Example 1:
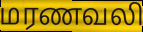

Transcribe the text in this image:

மரணவலி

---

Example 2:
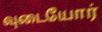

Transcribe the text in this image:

வுடையோர்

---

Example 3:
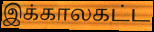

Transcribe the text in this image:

இக்காலகட்ட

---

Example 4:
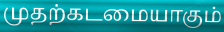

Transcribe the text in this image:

முதற்கடமையாகும்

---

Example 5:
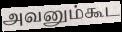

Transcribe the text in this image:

அவனும்கூட